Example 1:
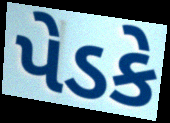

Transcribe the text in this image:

પેડકે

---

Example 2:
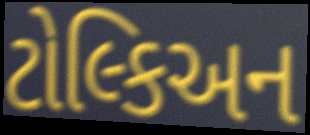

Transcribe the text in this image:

ટોલ્કિઅન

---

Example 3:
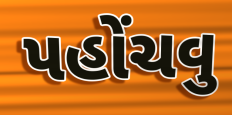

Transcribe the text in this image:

પહોંચવુ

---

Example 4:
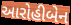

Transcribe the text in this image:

આરોહીબેન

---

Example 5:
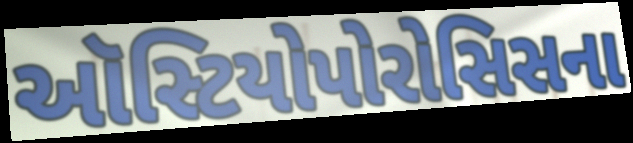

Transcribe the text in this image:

ઑસ્ટિયોપોરોસિસના